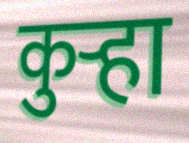
कुऱ्हा